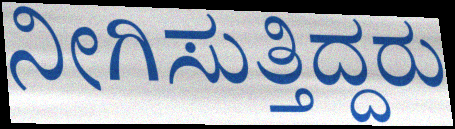
ನೀಗಿಸುತ್ತಿದ್ದರು